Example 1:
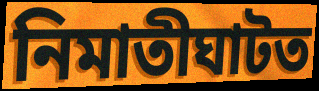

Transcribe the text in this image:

নিমাতীঘাটত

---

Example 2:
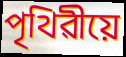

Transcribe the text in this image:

পৃথিৱীয়ে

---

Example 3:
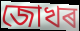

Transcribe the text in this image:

জোখৰ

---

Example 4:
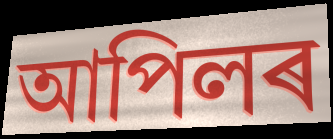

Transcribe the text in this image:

আপিলৰ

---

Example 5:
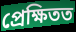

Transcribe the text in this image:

প্ৰেক্ষিতত